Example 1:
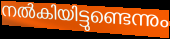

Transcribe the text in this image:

നൽകിയിട്ടുണ്ടെന്നും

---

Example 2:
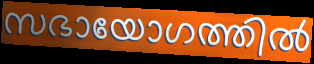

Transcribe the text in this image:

സഭായോഗത്തിൽ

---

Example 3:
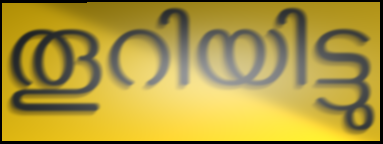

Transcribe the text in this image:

തൂറിയിട്ടു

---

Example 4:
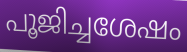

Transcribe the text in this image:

പൂജിച്ചശേഷം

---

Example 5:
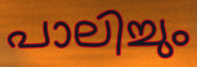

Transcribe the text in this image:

പാലിച്ചും